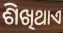
ଶିଖିଥାଏ